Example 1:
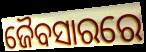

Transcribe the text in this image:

ଜୈବସାରରେ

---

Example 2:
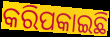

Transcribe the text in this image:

କରିପକାଇଛି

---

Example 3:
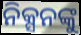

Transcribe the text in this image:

ନିକ୍ସନଙ୍କୁ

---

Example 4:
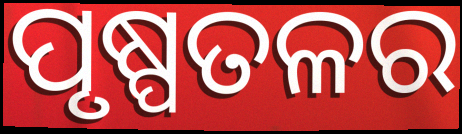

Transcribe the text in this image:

ପୃଷ୍ପତଳର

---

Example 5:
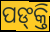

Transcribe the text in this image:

ପଙ୍‍କ୍ତି